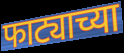
फाट्याच्या